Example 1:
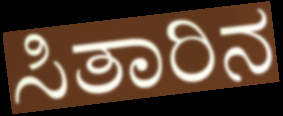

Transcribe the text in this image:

ಸಿತಾರಿನ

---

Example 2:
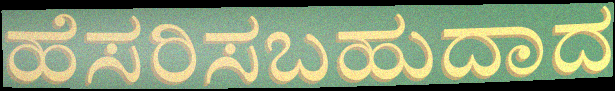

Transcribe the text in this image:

ಹೆಸರಿಸಬಹುದಾದ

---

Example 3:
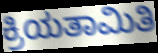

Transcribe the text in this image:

ಕ್ರಿಯತಾಮಿತಿ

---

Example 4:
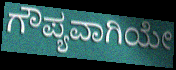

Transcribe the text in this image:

ಗೌಪ್ಯವಾಗಿಯೇ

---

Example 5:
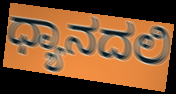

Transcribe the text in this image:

ಧ್ಯಾನದಲಿ